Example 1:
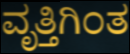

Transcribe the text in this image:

ವೃತ್ತಿಗಿಂತ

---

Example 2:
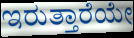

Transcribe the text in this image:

ಇರುತ್ತಾರೆಯೇ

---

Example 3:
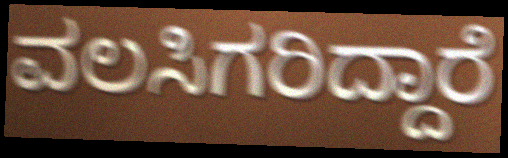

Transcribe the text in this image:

ವಲಸಿಗರಿದ್ದಾರೆ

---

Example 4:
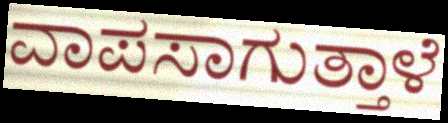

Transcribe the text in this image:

ವಾಪಸಾಗುತ್ತಾಳೆ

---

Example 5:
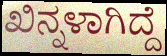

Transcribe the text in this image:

ಖಿನ್ನಳಾಗಿದ್ದೆ